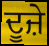
ਦੂਜ਼ੇ